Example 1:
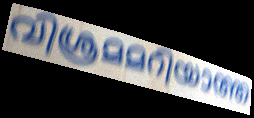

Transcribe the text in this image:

വിശ്രമമറിയാത്ത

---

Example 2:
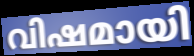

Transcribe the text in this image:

വിഷമായി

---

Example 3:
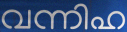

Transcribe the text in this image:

വന്നിഹ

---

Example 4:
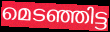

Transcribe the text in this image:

മെടഞ്ഞിട്ട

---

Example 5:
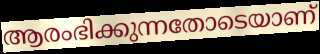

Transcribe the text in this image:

ആരംഭിക്കുന്നതോടെയാണ്